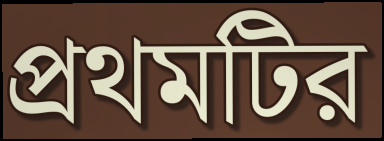
প্রথমটির